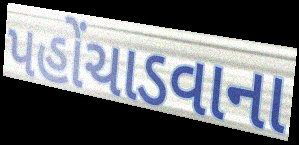
પહોંચાડવાના